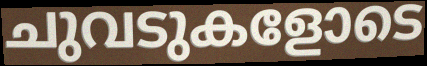
ചുവടുകളോടെ